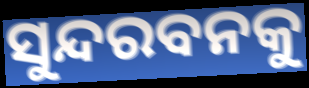
ସୁନ୍ଦରବନକୁ